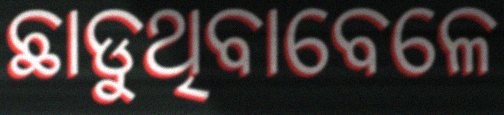
ଛାଡୁଥିବାବେଳେ